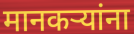
मानकऱ्यांना